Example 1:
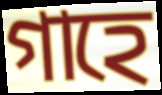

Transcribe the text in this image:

গাহে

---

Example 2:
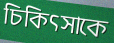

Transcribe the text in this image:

চিকিৎসাকে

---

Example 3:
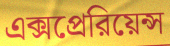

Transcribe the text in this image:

এক্সপ্রেরিয়েন্স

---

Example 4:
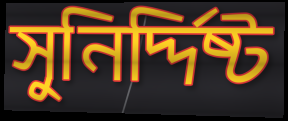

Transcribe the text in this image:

সুনির্দ্দিষ্ট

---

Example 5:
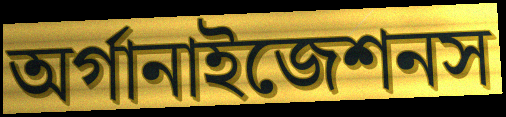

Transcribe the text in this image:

অর্গানাইজেশনস